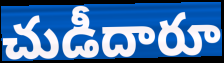
చుడీదారూ